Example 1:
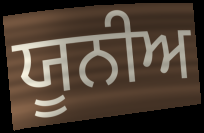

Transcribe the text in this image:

ਯੂਨੀਅ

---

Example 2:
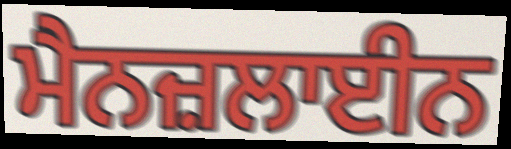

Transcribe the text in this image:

ਮੈਨਜ਼ਲਾਈਨ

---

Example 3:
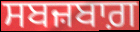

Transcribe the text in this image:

ਸਬਜ਼ਬਾਗ਼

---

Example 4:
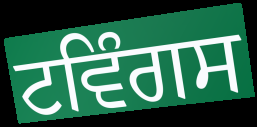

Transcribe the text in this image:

ਟਵਿੰਗਸ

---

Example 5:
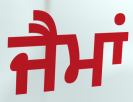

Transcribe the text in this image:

ਜੈਮਾਂ